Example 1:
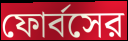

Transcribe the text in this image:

ফোর্বসের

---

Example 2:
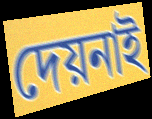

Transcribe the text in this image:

দেয়নাই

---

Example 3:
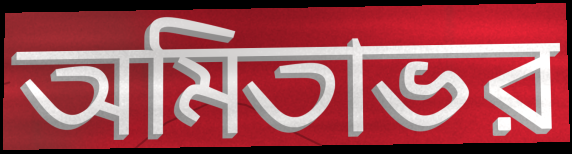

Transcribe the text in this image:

অমিতাভর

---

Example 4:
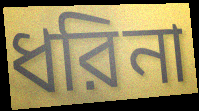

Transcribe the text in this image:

ধরিনা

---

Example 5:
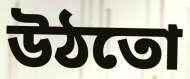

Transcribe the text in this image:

উঠতো